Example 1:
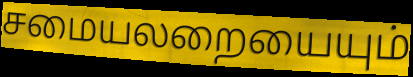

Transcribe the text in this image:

சமையலறையையும்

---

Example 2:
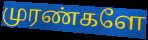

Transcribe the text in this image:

முரண்களே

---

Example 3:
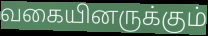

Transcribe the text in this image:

வகையினருக்கும்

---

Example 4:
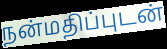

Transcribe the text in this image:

நன்மதிப்புடன்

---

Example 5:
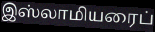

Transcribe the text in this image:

இஸ்லாமியரைப்